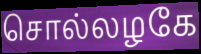
சொல்லழகே